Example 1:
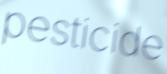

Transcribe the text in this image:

pesticide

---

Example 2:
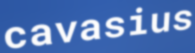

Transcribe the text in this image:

cavasius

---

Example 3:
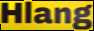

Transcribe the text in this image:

Hlang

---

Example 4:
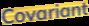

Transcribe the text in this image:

Covariant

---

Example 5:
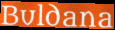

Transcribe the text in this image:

Buldana